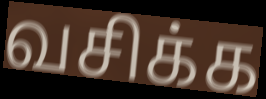
வசிக்க